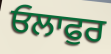
ਓਲਾਫੁਰ